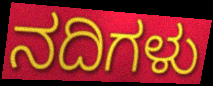
ನದಿಗಳು